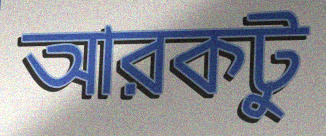
আরকটু